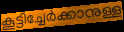
കൂട്ടിച്ചേർക്കാനുള്ള